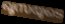
ഖൂസയുടെ